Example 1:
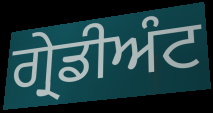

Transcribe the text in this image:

ਗ੍ਰੇਡੀਅੰਟ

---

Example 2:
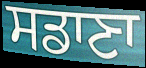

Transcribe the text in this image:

ਸਡਾਣਾ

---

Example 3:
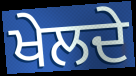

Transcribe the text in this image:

ਖੇਲਦੇ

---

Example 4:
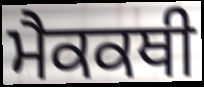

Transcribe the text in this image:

ਮੈਕਕਥੀ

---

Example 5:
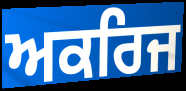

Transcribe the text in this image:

ਅਕਰਿਜ